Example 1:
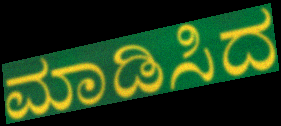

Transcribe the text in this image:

ಮಾಡಿಸಿದ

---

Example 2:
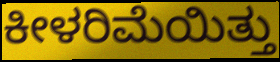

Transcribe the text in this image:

ಕೀಳರಿಮೆಯಿತ್ತು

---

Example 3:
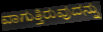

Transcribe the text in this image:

ವಾಗುತ್ತಿರುವುದನ್ನು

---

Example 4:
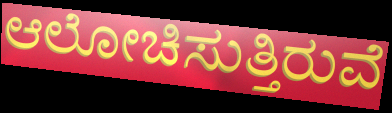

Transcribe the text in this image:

ಆಲೋಚಿಸುತ್ತಿರುವೆ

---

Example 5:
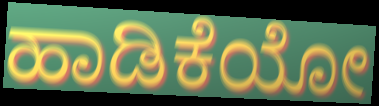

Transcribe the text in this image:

ಹಾಡಿಕೆಯೋ